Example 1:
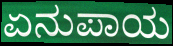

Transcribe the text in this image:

ಏನುಪಾಯ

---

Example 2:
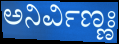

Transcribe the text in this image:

ಅನಿರ್ವಿಣ್ಣಃ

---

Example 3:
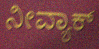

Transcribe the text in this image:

ನೀವ್ಯಾಕ್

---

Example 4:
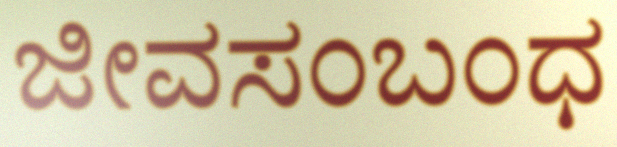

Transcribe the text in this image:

ಜೀವಸಂಬಂಧ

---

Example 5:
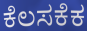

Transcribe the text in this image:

ಕೆಲಸಕೆಕ